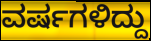
ವರ್ಷಗಳಿದ್ದು